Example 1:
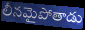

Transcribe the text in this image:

లీనమైపోతాడు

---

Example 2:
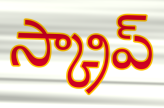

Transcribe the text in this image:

స్క్రాప్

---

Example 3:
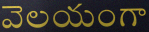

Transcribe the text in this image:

వెలయంగా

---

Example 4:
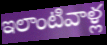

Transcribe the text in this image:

ఇలాంటివాళ్ల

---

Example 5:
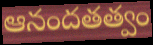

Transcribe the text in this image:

ఆనందతత్వం